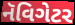
નૅવિગેટર